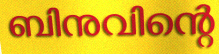
ബിനുവിന്റെ